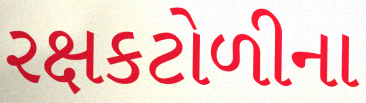
રક્ષકટોળીના